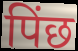
पिंछ